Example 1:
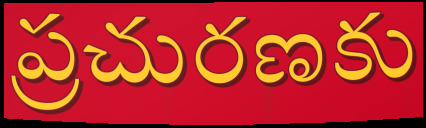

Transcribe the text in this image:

ప్రచురణకు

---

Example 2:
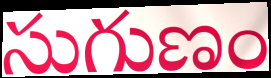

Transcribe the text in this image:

సుగుణం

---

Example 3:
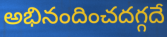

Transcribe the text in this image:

అభినందించదగ్గదే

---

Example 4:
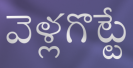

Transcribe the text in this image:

వెళ్లగొట్టే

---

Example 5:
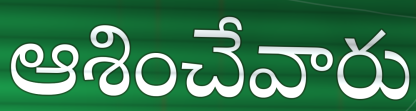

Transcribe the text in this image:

ఆశించేవారు